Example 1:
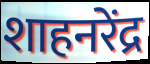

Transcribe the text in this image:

शाहनरेंद्र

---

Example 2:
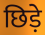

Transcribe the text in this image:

छिड़े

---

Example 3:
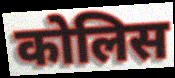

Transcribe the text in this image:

कोलिस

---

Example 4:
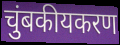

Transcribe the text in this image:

चुंबकीयकरण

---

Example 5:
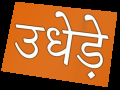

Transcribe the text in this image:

उधेड़े